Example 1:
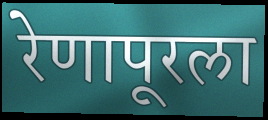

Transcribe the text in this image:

रेणापूरला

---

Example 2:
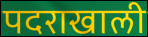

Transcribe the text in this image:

पदराखाली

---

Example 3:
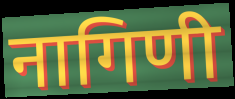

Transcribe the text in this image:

नागिणी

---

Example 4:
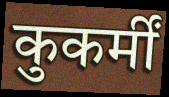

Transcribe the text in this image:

कुकर्मीं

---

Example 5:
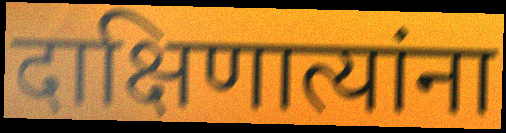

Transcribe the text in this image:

दाक्षिणात्यांना